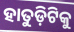
ହାତୁଡ଼ିଟିକୁ